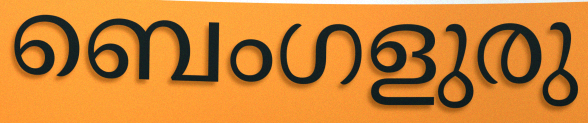
ബെംഗളുരു